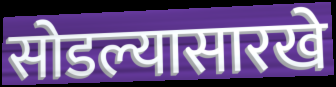
सोडल्यासारखे